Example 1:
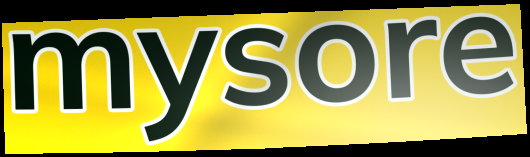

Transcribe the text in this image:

mysore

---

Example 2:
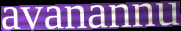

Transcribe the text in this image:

avanannu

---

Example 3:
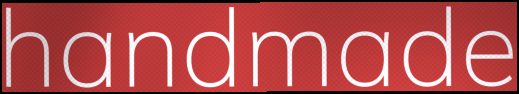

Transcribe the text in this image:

handmade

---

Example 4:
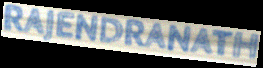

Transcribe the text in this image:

RAJENDRANATH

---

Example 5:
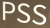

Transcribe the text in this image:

PSS